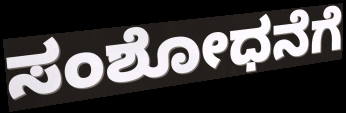
ಸಂಶೋಧನೆಗೆ